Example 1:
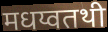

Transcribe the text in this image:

मधय्वतथी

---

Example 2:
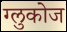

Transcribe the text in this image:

ग्लुकोज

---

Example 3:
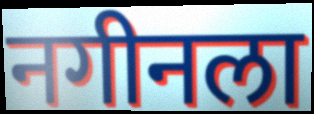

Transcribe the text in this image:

नगीनला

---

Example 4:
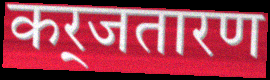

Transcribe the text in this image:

कर्जतारण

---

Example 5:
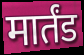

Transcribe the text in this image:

मार्तंड